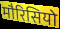
मौरिसियो